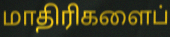
மாதிரிகளைப்